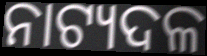
ନାଟ୍ୟଦଳ